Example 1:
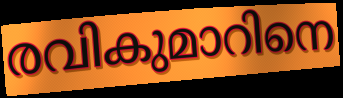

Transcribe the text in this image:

രവികുമാറിനെ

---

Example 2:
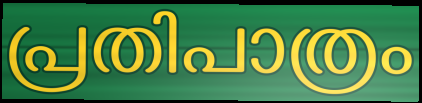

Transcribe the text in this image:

പ്രതിപാത്രം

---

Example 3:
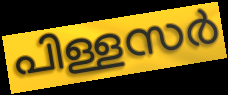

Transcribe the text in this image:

പിള്ളസർ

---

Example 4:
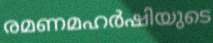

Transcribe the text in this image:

രമണമഹർഷിയുടെ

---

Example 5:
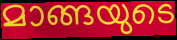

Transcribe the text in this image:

മാങ്ങയുടെ